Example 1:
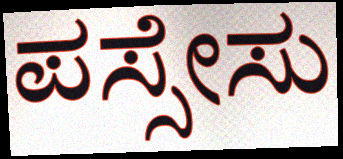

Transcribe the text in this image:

ಪಸ್ಸೇಸು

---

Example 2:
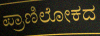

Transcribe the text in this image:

ಪ್ರಾಣಿಲೋಕದ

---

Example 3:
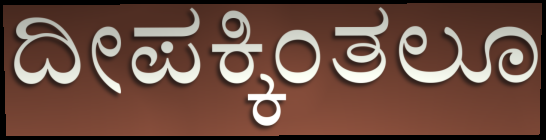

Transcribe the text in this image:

ದೀಪಕ್ಕಿಂತಲೂ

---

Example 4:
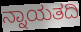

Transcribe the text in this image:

ನ್ನಾಯತದಿ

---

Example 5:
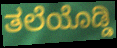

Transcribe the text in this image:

ತಲೆಯೊಡ್ಡಿ